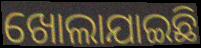
ଖୋଲାଯାଇଛି